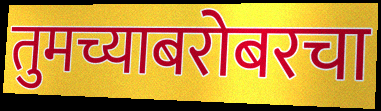
तुमच्याबरोबरचा